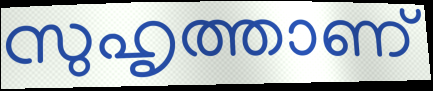
സുഹൃത്താണ്